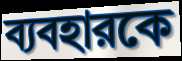
ব্যবহারকে